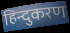
हिन्दुकरण